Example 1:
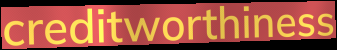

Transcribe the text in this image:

creditworthiness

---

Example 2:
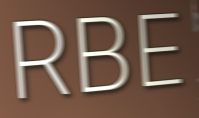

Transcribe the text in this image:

RBE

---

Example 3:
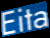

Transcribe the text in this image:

Eita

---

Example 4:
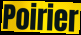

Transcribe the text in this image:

Poirier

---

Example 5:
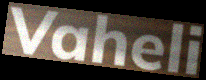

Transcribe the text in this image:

Vaheli